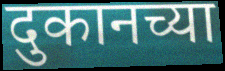
दुकानच्या